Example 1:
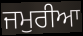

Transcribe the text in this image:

ਜਮੁਰੀਆ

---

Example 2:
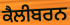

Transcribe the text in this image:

ਕੈਲੀਬਰਨ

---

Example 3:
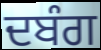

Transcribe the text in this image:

ਦਬੰਗ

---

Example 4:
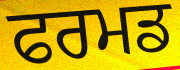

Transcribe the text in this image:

ਫਰਮਡ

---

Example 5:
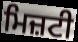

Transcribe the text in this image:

ਮਿਜ਼ਟੀ